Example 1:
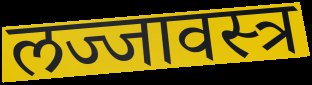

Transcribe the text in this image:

लज्जावस्त्र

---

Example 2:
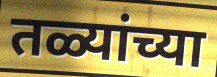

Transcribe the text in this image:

तळ्यांच्या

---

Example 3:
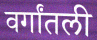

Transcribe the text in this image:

वर्गांतली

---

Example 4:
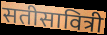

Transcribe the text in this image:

सतीसावित्री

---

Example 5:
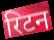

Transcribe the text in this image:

रिटन